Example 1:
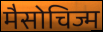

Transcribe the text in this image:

मैसोचिज्म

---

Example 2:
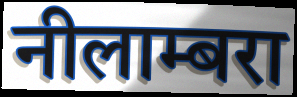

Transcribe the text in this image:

नीलाम्बरा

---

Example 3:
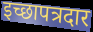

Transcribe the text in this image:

इच्छापत्रदार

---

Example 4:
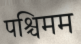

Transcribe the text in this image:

पश्चिमम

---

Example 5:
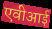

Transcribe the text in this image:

एवीआई